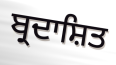
ਬ੍ਰਦਾਸ਼ਿਤ